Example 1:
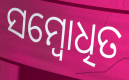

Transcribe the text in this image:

ସମ୍ବୋଧିତ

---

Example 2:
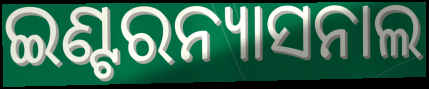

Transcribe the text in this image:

ଇଣ୍ଟରନ୍ୟାସନାଲ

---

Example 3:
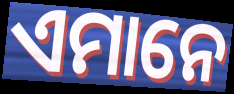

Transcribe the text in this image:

ଏମାନେ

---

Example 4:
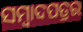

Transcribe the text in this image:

ସମ୍ବାଦପତ୍ରର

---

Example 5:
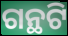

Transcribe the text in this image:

ଗନ୍ଥଟି